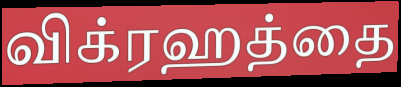
விக்ரஹத்தை